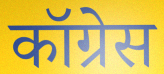
कॉग्रेस